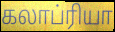
கலாப்ரியா